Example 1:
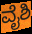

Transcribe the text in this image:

ವೈಶಿ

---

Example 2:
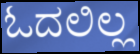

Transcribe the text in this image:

ಓದಲಿಲ್ಲ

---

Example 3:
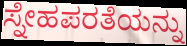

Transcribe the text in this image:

ಸ್ನೇಹಪರತೆಯನ್ನು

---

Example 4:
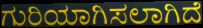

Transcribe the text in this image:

ಗುರಿಯಾಗಿಸಲಾಗಿದೆ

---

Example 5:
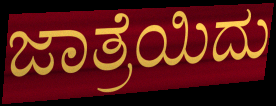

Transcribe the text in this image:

ಜಾತ್ರೆಯಿದು